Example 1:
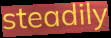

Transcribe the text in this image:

steadily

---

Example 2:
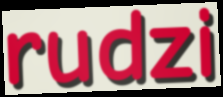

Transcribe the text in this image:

rudzi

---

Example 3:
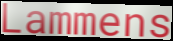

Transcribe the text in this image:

Lammens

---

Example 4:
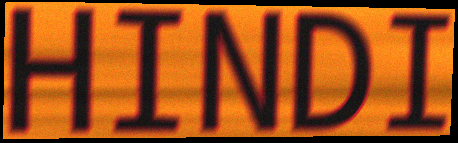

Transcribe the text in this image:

HINDI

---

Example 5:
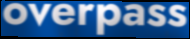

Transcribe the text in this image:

overpass